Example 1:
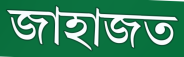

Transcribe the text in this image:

জাহাজত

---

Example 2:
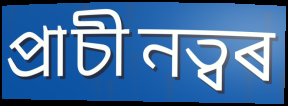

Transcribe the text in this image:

প্ৰাচীনত্বৰ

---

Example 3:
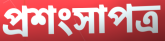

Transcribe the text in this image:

প্ৰশংসাপত্ৰ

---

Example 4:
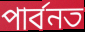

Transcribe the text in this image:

পাৰ্বনত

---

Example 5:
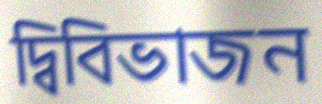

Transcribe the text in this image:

দ্বিবিভাজন